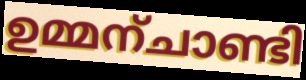
ഉമ്മന്ചാണ്ടി